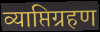
व्याप्तिग्रहण